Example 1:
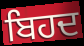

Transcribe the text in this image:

ਬਿਹਦ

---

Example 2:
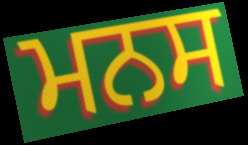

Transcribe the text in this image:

ਮਨਸ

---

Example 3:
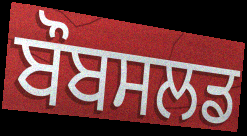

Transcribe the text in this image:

ਬੌਬਸਲਡ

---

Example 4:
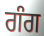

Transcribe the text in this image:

ਗੰਗ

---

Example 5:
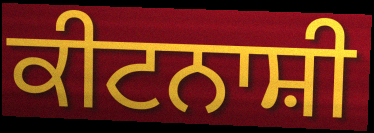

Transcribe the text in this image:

ਕੀਟਨਾਸ਼ੀ